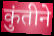
कुंतीने